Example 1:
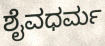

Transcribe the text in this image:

ಶೈವಧರ್ಮ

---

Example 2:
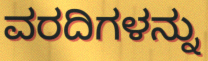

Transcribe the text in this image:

ವರದಿಗಳನ್ನು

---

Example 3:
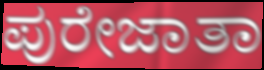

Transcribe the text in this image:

ಪುರೇಜಾತಾ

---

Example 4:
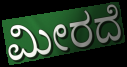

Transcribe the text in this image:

ಮೀರದೆ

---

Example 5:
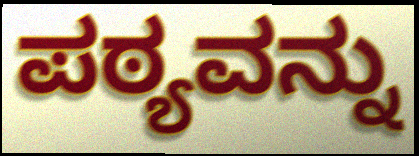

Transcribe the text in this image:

ಪಠ್ಯವನ್ನು